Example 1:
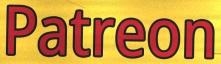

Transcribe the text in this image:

Patreon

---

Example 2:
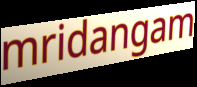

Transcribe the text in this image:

mridangam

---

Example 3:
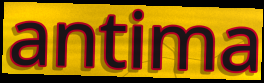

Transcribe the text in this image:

antima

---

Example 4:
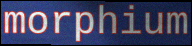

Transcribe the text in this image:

morphium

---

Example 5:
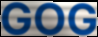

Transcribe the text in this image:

GOG